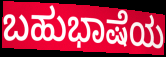
ಬಹುಭಾಷೆಯ